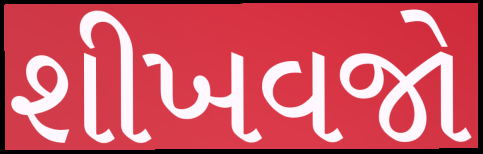
શીખવજો